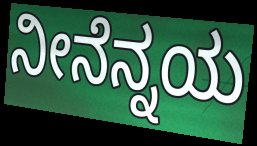
ನೀನೆನ್ನಯ